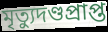
মৃত্যুদণ্ডপ্রাপ্ত